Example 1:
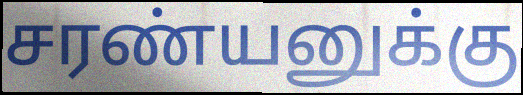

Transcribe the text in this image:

சரண்யனுக்கு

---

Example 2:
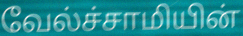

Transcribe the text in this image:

வேல்ச்சாமியின்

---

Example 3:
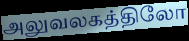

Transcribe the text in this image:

அலுவலகத்திலோ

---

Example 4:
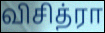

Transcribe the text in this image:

விசித்ரா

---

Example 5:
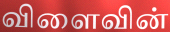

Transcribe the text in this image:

விளைவின்